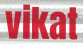
vikat